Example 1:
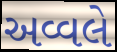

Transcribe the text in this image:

અવ્વલે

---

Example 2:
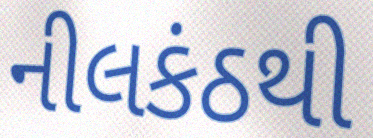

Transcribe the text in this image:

નીલકંઠથી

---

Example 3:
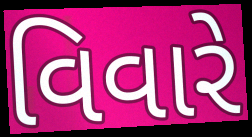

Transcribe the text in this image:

વિવારે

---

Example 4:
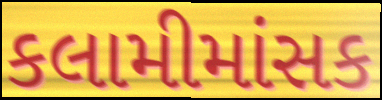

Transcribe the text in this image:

કલામીમાંસક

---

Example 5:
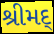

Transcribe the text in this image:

શ્રીમદ્‍